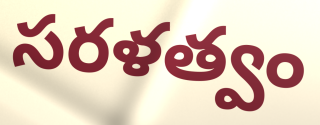
సరళత్వం